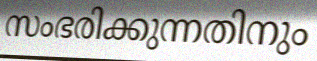
സംഭരിക്കുന്നതിനും